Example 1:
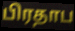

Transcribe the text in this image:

பிரதாப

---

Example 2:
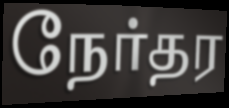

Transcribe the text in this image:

நேர்தர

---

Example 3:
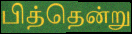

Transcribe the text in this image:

பித்தென்று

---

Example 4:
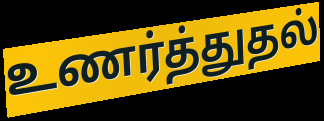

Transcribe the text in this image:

உணர்த்துதல்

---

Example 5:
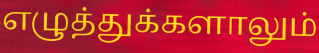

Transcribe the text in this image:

எழுத்துக்களாலும்